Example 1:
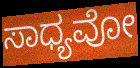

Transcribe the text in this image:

ಸಾಧ್ಯವೋ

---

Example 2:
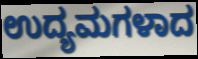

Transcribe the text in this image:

ಉದ್ಯಮಗಳಾದ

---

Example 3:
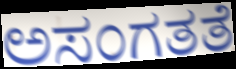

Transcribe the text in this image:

ಅಸಂಗತತೆ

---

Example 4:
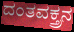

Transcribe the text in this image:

ದಂತವಕ್ತ್ರನ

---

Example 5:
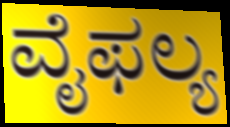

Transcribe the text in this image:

ವೈಫಲ್ಯ